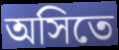
অসিতে